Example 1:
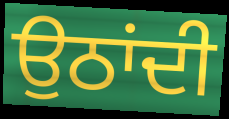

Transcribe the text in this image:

ਉਠਾਂਦੀ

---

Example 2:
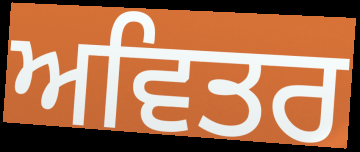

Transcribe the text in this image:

ਅਵਿਤਰ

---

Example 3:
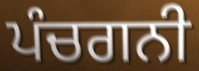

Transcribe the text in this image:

ਪੰਚਗਨੀ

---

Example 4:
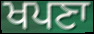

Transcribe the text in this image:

ਖਪਣਾ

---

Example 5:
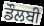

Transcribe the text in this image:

ਡੌਲਬੀ